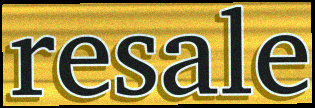
resale